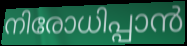
നിരോധിപ്പാൻ